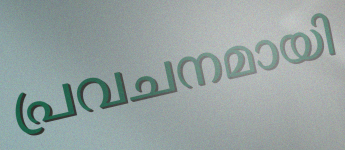
പ്രവചനമായി